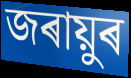
জৰায়ুৰ